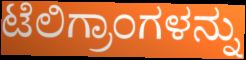
ಟೆಲಿಗ್ರಾಂಗಳನ್ನು